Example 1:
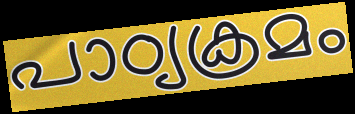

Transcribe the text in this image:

പാഠ്യക്രമം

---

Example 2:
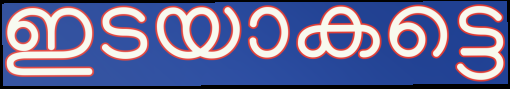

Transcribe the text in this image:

ഇടയാകട്ടെ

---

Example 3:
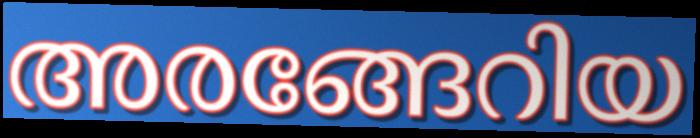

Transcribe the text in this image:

അരങ്ങേറിയ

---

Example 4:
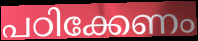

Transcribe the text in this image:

പഠിക്കേണം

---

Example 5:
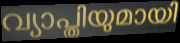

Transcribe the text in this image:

വ്യാപ്തിയുമായി